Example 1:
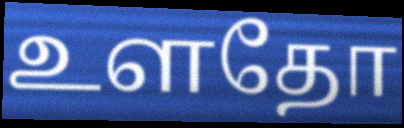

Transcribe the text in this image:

உளதோ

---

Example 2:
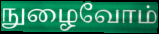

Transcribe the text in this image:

நுழைவோம்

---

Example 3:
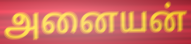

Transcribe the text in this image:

அனையன்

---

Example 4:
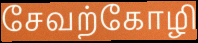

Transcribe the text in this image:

சேவற்கோழி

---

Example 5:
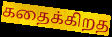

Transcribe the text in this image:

கதைக்கிறத